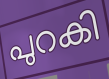
പുറകി